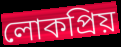
লোকপ্ৰিয়